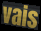
vais